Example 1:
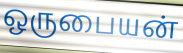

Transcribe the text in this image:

ஒருபையன்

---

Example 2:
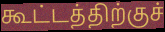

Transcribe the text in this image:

கூட்டத்திற்குச்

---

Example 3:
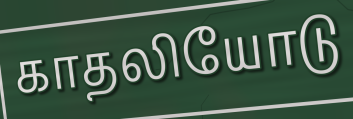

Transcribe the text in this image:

காதலியோடு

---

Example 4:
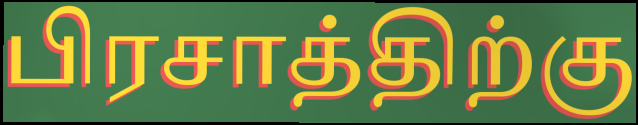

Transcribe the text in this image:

பிரசாத்திற்கு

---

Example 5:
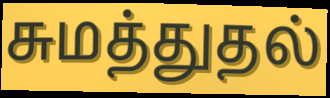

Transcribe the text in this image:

சுமத்துதல்